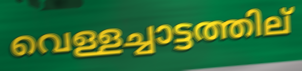
വെള്ളച്ചാട്ടത്തില്